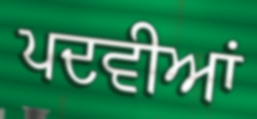
ਪਦਵੀਆਂ